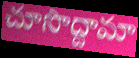
చూసొద్దామా